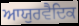
ਆਯੁਰਵੈਦਿਕ